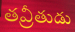
తవ్రీతుడు